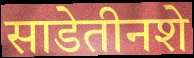
साडेतीनशे